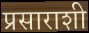
प्रसाराशी